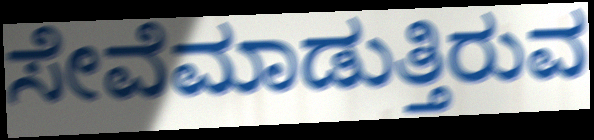
ಸೇವೆಮಾಡುತ್ತಿರುವ